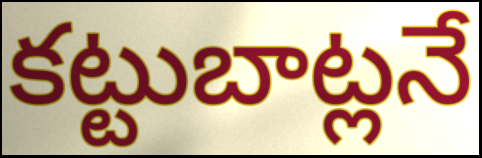
కట్టుబాట్లనే